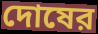
দোষের